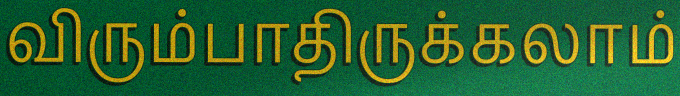
விரும்பாதிருக்கலாம்